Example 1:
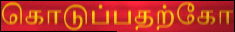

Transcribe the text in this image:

கொடுப்பதற்கோ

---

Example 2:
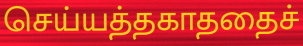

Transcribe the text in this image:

செய்யத்தகாததைச்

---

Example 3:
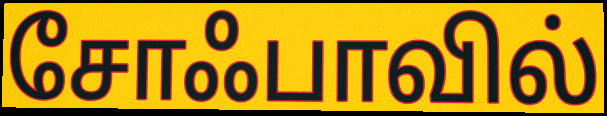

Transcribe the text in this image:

சோஃபாவில்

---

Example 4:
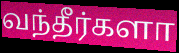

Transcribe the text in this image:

வந்தீர்களா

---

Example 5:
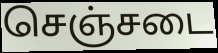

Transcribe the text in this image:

செஞ்சடை